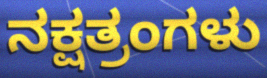
ನಕ್ಷತ್ರಂಗಳು